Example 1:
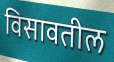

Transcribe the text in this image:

विसावतील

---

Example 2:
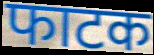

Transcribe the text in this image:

फाटक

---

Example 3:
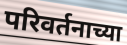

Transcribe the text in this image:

परिवर्तनाच्या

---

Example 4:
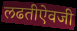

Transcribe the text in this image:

लढतीऐवजी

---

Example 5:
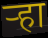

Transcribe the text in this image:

ऱ्हा